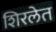
शिरलेत